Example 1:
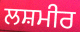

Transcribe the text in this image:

ਲਸ਼ਮੀਰ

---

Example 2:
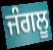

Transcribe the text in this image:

ਜੰਗਲੂ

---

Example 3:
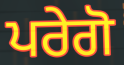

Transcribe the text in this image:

ਪਰੇਗੋ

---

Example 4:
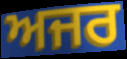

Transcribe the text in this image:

ਅਜਰ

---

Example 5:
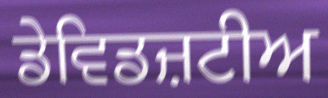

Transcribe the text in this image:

ਡੇਵਿਡਜ਼ਟੀਅ